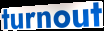
turnout